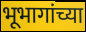
भूभागांच्या